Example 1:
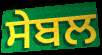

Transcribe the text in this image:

ਸੇਬਲ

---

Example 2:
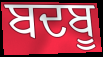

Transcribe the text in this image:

ਬਦਬੂ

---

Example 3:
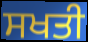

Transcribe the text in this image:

ਸਖਤੀ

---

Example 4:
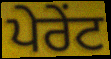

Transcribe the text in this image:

ਪੇਰੇਂਟ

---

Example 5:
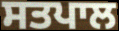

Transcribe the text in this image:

ਸਤਪਾਲ